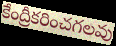
కేంద్రీకరించగలవు